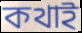
কথাই